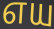
எய